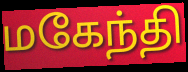
மகேந்தி